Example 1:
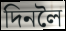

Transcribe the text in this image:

দিনলৈ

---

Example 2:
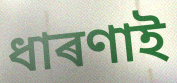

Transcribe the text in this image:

ধাৰণাই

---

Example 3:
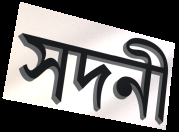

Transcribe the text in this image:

সদনী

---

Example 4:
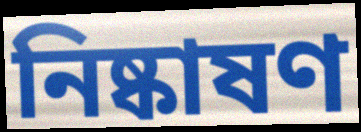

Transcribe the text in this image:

নিষ্কাষণ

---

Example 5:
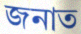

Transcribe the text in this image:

জনাত